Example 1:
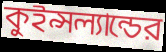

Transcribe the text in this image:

কুইন্সল্যান্ডের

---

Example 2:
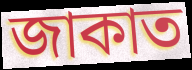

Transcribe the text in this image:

জাকাত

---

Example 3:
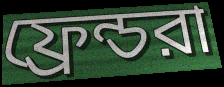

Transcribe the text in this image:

ফ্রেন্ডরা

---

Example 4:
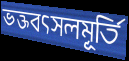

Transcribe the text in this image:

ভক্তবৎসলমূর্তি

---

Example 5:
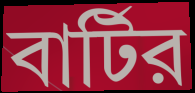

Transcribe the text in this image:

বার্টির